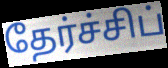
தேர்ச்சிப்